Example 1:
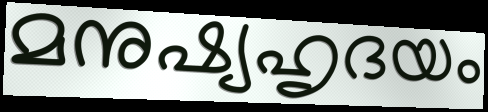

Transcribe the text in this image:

മനുഷ്യഹൃദയം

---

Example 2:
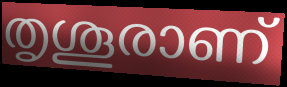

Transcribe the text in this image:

തൃശൂരാണ്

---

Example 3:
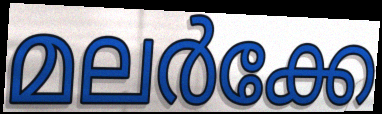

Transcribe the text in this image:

മലർക്കേ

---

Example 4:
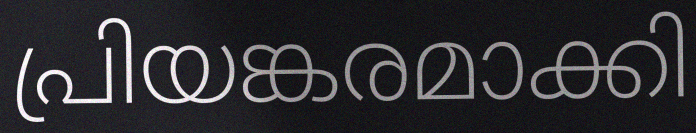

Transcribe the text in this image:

പ്രിയങ്കരമാക്കി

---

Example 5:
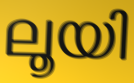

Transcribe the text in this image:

ലൂയി